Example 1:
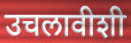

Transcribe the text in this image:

उचलावीशी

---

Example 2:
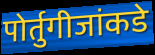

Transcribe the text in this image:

पोर्तुगीजांकडे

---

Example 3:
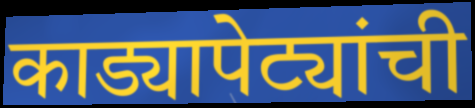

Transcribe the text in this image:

काड्यापेट्यांची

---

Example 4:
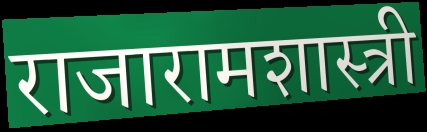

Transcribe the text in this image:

राजारामशास्त्री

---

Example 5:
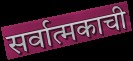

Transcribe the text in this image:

सर्वात्मकाची